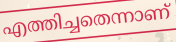
എത്തിച്ചതെന്നാണ്